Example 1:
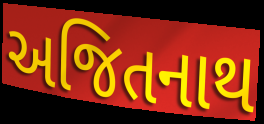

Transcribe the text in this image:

અજિતનાથ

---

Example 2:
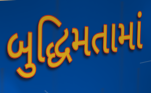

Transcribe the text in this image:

બુદ્ધિમતામાં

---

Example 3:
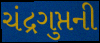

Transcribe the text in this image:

ચંદ્રગુપ્તની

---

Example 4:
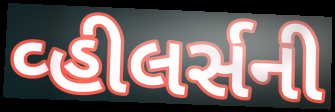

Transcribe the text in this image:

વ્હીલર્સની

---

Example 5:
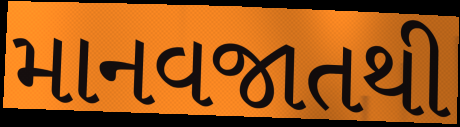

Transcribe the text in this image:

માનવજાતથી